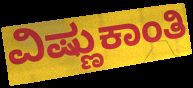
ವಿಷ್ಣುಕಾಂತಿ